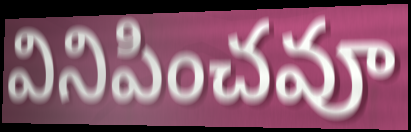
వినిపించవూ